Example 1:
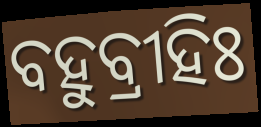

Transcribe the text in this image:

ବହୁବ୍ରୀହିଃ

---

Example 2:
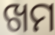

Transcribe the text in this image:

ଖମ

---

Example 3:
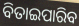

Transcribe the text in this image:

ବିତାଇପାରିବ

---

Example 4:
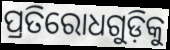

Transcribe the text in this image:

ପ୍ରତିରୋଧଗୁଡ଼ିକୁ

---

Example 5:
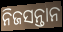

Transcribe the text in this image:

ନିଜସନ୍ତାନ